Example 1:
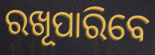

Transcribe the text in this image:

ରଖୂପାରିବେ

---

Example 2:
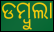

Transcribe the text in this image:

ଡମ୍ୱୁଲା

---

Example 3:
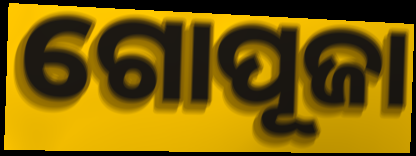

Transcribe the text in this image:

ଗୋପୂଜା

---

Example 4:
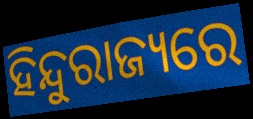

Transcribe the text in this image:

ହିନ୍ଦୁରାଜ୍ୟରେ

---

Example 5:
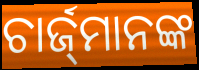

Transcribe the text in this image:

ଚାର୍ଜ୍‍ମାନଙ୍କ